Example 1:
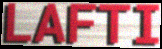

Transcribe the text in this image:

LAFTI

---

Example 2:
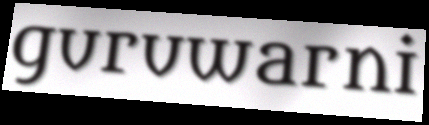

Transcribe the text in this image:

guruwarni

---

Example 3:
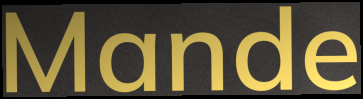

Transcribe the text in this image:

Mande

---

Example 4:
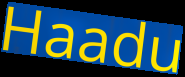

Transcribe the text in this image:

Haadu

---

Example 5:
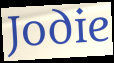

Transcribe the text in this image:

Jodie